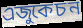
এজুকেচন